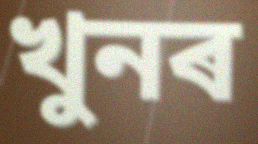
খুনৰ